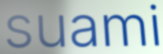
suami